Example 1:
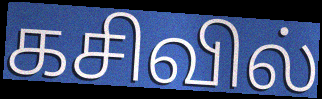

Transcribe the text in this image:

கசிவில்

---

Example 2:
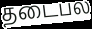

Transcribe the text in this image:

தடைபல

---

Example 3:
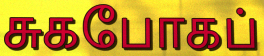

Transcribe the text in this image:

சுகபோகப்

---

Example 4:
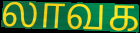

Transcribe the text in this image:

லாவக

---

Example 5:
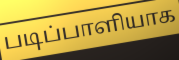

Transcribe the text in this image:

படிப்பாளியாக